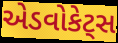
એડવોકેટ્સ